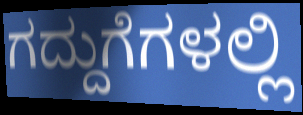
ಗದ್ದುಗೆಗಳಲ್ಲಿ